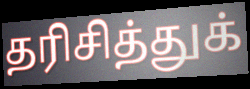
தரிசித்துக்